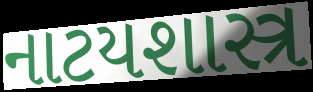
નાટયશાસ્ત્ર